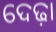
ଦେଢ଼ା